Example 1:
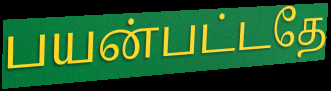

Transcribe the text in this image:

பயன்பட்டதே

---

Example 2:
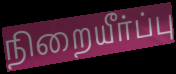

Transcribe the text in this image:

நிறையீர்ப்பு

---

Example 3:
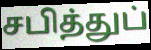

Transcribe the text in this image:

சபித்துப்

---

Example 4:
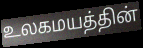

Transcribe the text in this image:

உலகமயத்தின்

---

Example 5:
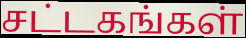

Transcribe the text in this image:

சட்டகங்கள்